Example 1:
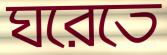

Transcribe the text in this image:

ঘরেতে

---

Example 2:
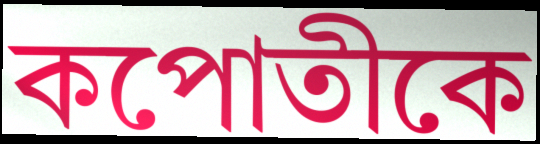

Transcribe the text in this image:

কপোতীকে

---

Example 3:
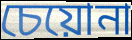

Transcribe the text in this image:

চেয়োনা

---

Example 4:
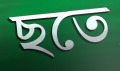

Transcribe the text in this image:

ছতে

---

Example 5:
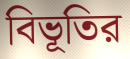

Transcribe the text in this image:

বিভূতির